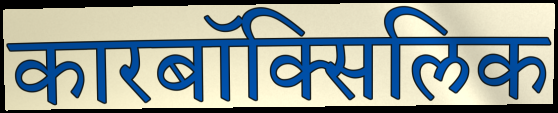
कारबॉक्सिलिक